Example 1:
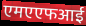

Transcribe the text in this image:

एमएएफआई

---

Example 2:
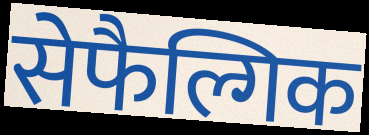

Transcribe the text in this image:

सेफैल्गिक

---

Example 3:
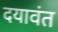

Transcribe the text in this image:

दयावंत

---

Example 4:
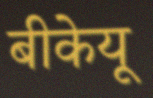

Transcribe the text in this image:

बीकेयू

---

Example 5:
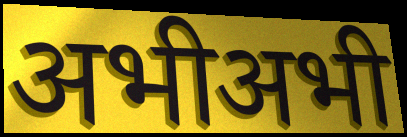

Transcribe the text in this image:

अभीअभी